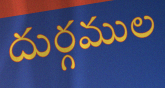
దుర్గముల